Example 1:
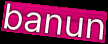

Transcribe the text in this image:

banun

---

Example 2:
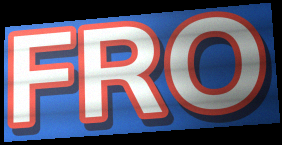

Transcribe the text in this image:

FRO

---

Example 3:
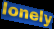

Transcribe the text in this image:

lonely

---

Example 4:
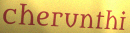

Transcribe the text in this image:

cherunthi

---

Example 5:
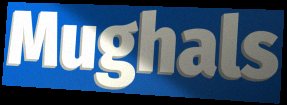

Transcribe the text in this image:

Mughals